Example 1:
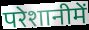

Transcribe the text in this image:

परेशानीमें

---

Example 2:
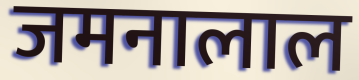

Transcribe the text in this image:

जमनालाल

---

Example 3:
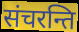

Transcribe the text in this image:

संचरन्ति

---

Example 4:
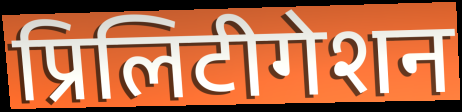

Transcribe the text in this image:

प्रिलिटीगेशन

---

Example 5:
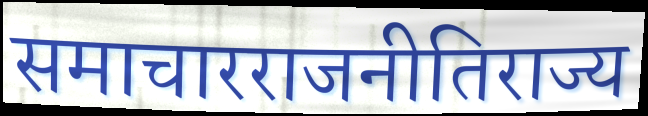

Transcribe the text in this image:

समाचारराजनीतिराज्य